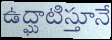
ఉద్ఘాటిస్తూనే